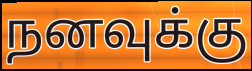
நனவுக்கு